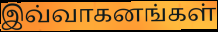
இவ்வாகனங்கள்